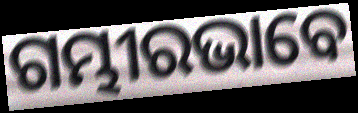
ଗମ୍ଭୀରଭାବେ